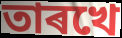
তাৰখে